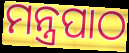
ମନ୍ତ୍ରପାଠ